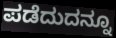
ಪಡೆದುದನ್ನೂ